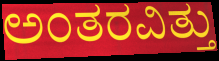
ಅಂತರವಿತ್ತು